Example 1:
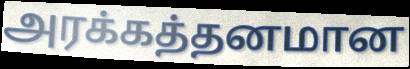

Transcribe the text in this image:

அரக்கத்தனமான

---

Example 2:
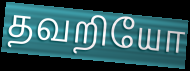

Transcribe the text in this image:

தவறியோ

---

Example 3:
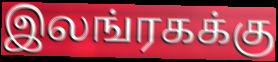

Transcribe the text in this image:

இலங்ரகக்கு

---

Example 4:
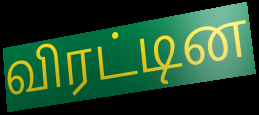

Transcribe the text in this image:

விரட்டின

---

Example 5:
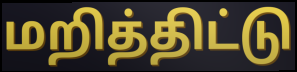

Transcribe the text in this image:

மறித்திட்டு